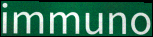
immuno